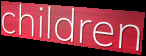
children